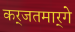
कर्जतमार्गे